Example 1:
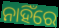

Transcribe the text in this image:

ନାହିଁରେ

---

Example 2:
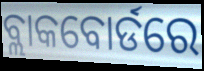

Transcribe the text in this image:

ବ୍ଲାକବୋର୍ଡରେ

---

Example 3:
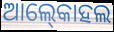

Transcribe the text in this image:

ଆଲ୍‍କୋହଲ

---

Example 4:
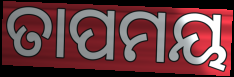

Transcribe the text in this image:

ତାପମୟ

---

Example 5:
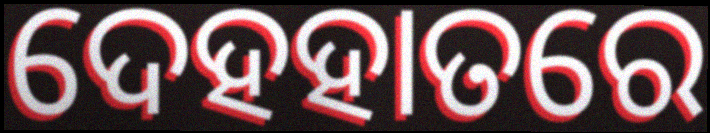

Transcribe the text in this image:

ଦେହହାତରେ